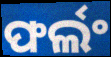
ଫର୍ଲଂ